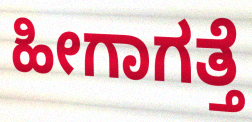
ಹೀಗಾಗತ್ತೆ